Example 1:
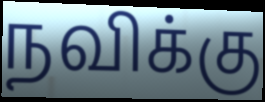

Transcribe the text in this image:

நவிக்கு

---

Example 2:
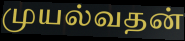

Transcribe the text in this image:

முயல்வதன்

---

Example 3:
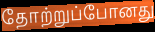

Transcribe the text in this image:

தோற்றுப்போனது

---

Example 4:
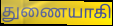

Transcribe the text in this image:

துணையாகி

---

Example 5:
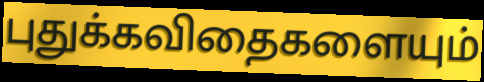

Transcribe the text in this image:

புதுக்கவிதைகளையும்